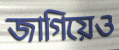
জাগিয়েও